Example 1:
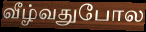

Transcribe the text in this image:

வீழ்வதுபோல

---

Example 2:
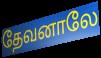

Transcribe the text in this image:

தேவனாலே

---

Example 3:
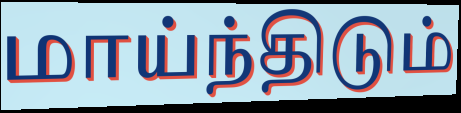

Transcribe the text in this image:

மாய்ந்திடும்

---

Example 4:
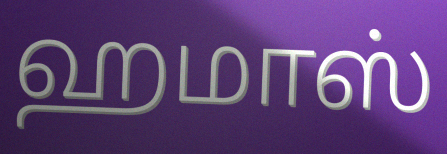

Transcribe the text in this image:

ஹமாஸ்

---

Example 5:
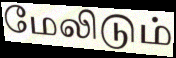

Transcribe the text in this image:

மேலிடும்